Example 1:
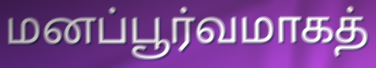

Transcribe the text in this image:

மனப்பூர்வமாகத்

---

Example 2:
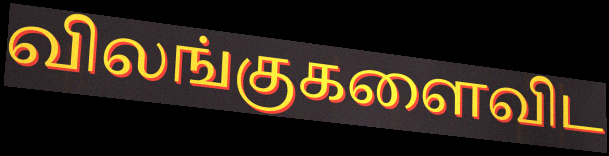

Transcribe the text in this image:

விலங்குகளைவிட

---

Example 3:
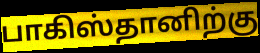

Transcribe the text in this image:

பாகிஸ்தானிற்கு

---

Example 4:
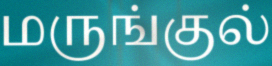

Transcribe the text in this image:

மருங்குல்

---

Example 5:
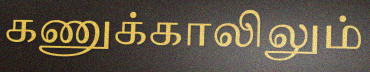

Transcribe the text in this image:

கணுக்காலிலும்